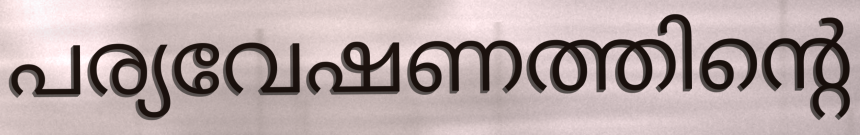
പര്യവേഷണത്തിന്റെ